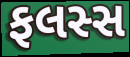
ફલસ્સ